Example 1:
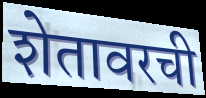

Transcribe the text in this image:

शेतावरची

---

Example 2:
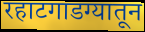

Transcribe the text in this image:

रहाटगाडग्यातून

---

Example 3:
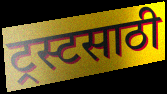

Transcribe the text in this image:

ट्रस्टसाठी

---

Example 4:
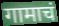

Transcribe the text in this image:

गामाचं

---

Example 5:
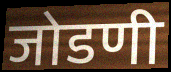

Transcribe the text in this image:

जोडणी